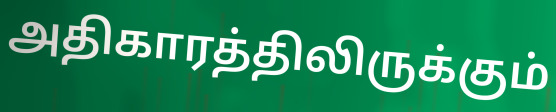
அதிகாரத்திலிருக்கும்